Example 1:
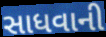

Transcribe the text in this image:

સાધવાની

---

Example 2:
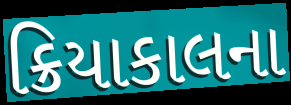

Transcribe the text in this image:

ક્રિયાકાલના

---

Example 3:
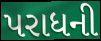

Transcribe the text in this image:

પરાધની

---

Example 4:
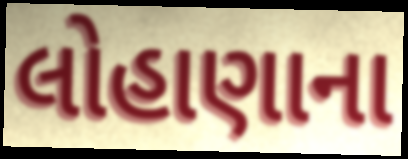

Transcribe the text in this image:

લોહાણાના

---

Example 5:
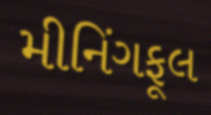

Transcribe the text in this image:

મીનિંગફૂલ